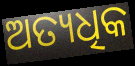
ଅତ୍ୟଧିକ